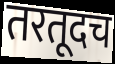
तरतूदच